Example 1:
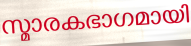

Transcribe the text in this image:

സ്മാരകഭാഗമായി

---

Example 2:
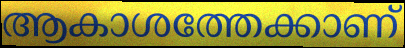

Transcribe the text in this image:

ആകാശത്തേക്കാണ്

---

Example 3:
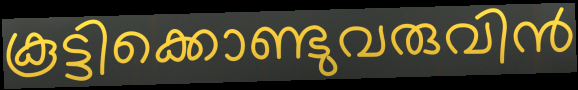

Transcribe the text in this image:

കൂട്ടിക്കൊണ്ടുവരുവിൻ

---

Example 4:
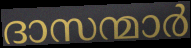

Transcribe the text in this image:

ദാസന്മാർ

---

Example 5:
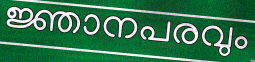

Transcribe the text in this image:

ജ്ഞാനപരവും